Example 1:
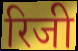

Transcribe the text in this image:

रिजी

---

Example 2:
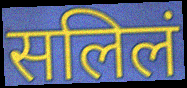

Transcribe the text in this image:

सलिलं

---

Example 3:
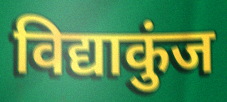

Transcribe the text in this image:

विद्याकुंज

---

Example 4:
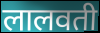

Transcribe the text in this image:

लालवती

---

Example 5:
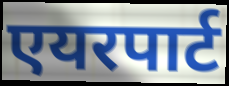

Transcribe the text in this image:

एयरपार्ट